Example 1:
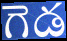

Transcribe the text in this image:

గెడ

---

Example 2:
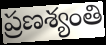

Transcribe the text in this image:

ప్రణశ్యంతి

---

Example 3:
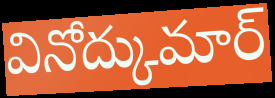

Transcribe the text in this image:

వినోద్కుమార్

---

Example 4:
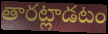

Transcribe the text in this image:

తారట్లాడటం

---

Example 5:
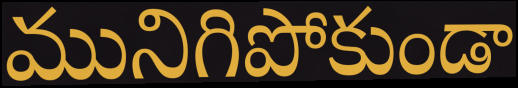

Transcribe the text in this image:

మునిగిపోకుండా